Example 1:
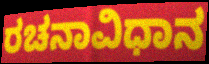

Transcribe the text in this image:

ರಚನಾವಿಧಾನ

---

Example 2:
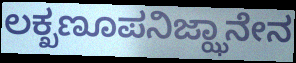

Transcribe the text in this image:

ಲಕ್ಖಣೂಪನಿಜ್ಝಾನೇನ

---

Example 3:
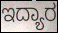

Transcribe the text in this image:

ಇದ್ಯಾರ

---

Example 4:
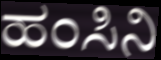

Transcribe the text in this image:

ಹಂಸಿನಿ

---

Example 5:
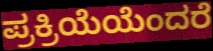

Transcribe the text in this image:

ಪ್ರಕ್ರಿಯೆಯೆಂದರೆ